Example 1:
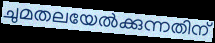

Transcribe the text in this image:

ചുമതലയേൽക്കുന്നതിന്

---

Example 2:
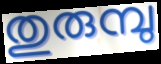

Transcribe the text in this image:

തുരുമ്പു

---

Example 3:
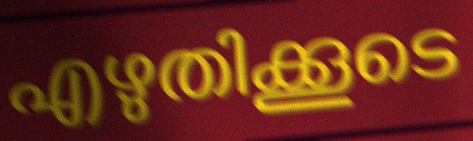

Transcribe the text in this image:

എഴുതിക്കൂടെ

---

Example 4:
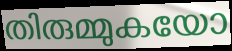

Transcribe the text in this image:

തിരുമ്മുകയോ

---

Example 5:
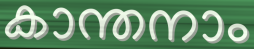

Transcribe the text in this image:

കാന്തനാം